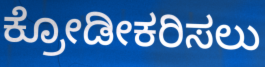
ಕ್ರೋಡೀಕರಿಸಲು